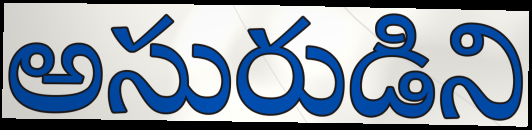
అసురుడిని